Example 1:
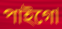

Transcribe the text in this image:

পাইগো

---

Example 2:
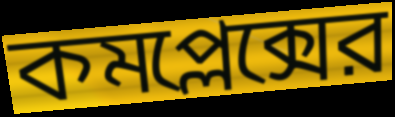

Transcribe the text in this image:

কমপ্লেক্সের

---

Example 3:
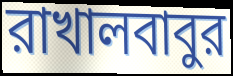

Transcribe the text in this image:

রাখালবাবুর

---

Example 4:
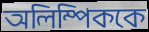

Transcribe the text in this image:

অলিম্পিককে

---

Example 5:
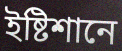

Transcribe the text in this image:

ইষ্টিশানে